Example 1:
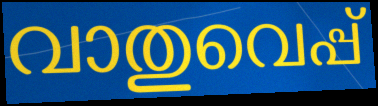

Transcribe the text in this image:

വാതുവെപ്പ്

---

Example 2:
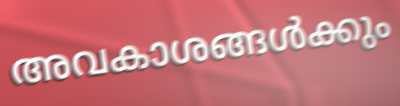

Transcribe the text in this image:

അവകാശങ്ങൾക്കും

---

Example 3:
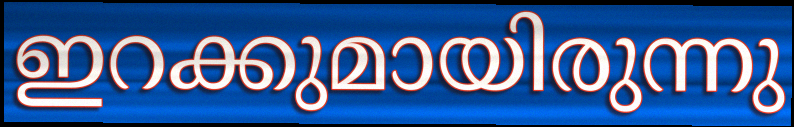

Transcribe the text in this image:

ഇറക്കുമായിരുന്നു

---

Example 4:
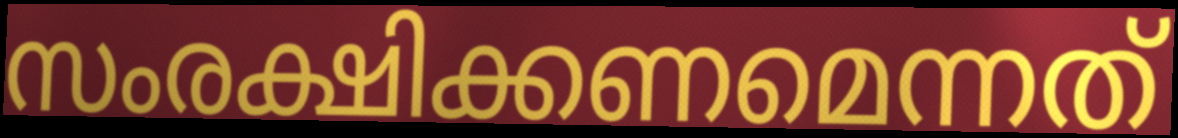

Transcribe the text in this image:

സംരക്ഷിക്കണമെന്നത്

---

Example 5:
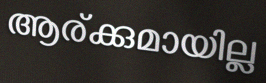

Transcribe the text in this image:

ആര്ക്കുമായില്ല